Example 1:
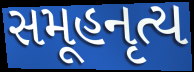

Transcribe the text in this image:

સમૂહનૃત્ય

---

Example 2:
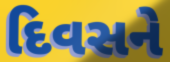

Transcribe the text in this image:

દિવસને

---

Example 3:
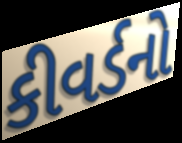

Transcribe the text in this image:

કીવર્ડનો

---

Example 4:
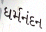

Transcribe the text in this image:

ધર્મનંદન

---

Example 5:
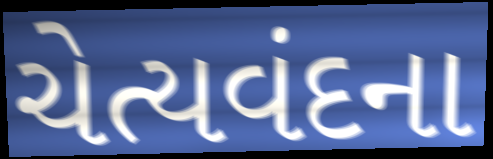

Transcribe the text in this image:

ચેત્યવંદના